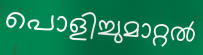
പൊളിച്ചുമാറ്റൽ